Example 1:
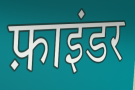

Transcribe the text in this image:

फ़ाइंडर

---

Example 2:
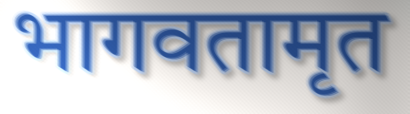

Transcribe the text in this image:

भागवतामृत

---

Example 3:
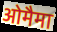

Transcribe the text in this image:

ओमैमा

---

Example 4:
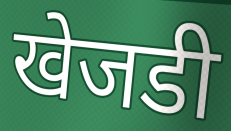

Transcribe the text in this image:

खेजडी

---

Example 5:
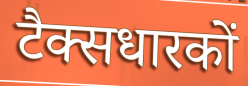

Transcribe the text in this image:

टैक्सधारकों